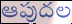
ఆపుదల